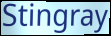
Stingray